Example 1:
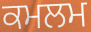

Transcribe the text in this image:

ਕਮਲਮ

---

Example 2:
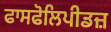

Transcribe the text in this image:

ਫਾਸਫੋਲਿਪੀਡਜ਼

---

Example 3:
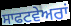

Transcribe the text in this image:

ਸਾਫਟਵੇਅਰਾਂ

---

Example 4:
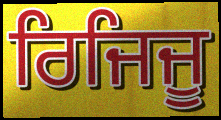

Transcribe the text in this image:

ਰਿਜਿਜੂ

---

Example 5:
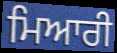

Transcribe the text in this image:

ਮਿਆਰੀ